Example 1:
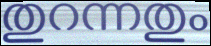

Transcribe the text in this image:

തുറന്നതും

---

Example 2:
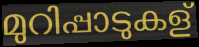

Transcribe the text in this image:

മുറിപ്പാടുകള്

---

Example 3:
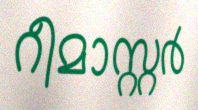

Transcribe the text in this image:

റീമാസ്റ്റർ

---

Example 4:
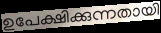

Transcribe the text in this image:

ഉപേക്ഷിക്കുന്നതായി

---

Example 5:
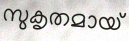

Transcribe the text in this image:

സുകൃതമായ്